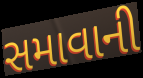
સમાવાની